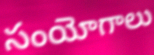
సంయోగాలు